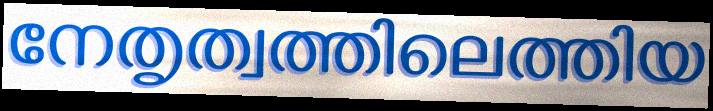
നേതൃത്വത്തിലെത്തിയ